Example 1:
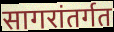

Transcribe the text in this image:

सागरांतर्गत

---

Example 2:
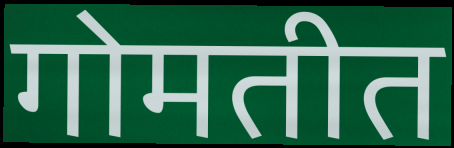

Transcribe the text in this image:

गोमतीत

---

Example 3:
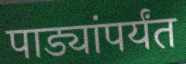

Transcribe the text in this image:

पाड्यांपर्यंत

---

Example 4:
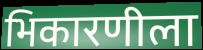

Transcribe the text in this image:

भिकारणीला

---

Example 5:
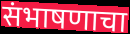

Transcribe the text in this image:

संभाषणाचा